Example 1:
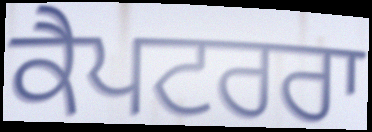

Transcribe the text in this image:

ਕੈਪਟਰਰਾ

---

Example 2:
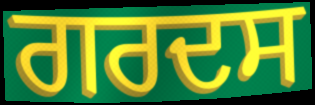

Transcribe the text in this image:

ਗਰਦਸ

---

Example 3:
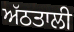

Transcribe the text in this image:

ਅੱਠਤਾਲੀ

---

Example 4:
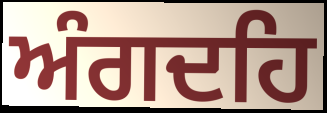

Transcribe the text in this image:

ਅੰਗਦਹਿ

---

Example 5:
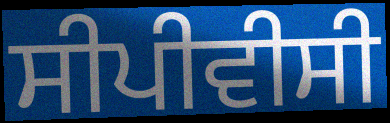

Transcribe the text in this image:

ਸੀਪੀਵੀਸੀ